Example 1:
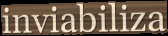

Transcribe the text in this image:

inviabiliza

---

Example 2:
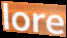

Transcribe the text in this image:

lore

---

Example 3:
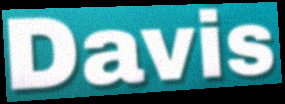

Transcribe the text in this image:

Davis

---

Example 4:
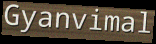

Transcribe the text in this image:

Gyanvimal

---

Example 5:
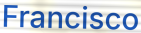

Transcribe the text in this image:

Francisco